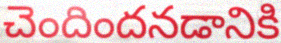
చెందిందనడానికి